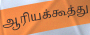
ஆரியக்கூத்து